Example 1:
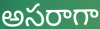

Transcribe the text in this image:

అసరాగా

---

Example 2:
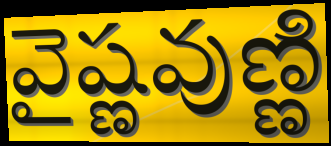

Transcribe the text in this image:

వైష్ణవుణ్ణి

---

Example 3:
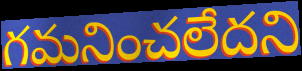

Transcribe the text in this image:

గమనించలేదని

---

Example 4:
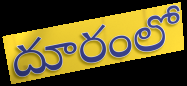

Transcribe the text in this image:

దూరంలో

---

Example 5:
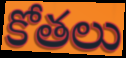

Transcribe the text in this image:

కోతలు